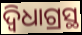
ଦ୍ବିଧାଗ୍ରସ୍ଥ